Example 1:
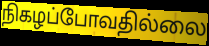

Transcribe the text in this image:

நிகழப்போவதில்லை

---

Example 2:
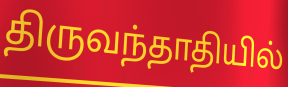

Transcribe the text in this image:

திருவந்தாதியில்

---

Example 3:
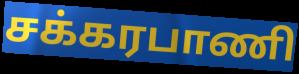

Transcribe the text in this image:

சக்கரபாணி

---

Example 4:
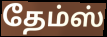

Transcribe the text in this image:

தேம்ஸ்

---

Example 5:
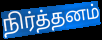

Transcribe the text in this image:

நிர்த்தனம்